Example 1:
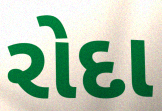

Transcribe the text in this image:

રોદા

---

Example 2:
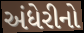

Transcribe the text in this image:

અંધેરીનો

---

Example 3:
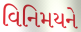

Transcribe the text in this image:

વિનિમયને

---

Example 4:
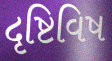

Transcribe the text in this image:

દૃષ્ટિવિષ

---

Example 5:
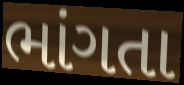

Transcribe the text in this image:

ભાંગતા